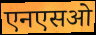
एनएसओ